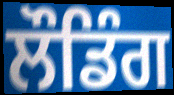
ਲੌਡਿੰਗ